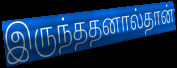
இருந்ததனால்தான்